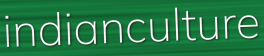
indianculture